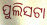
ପୁଲିସଟା